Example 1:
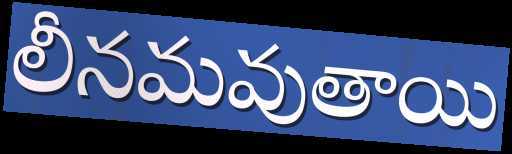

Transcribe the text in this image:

లీనమవుతాయి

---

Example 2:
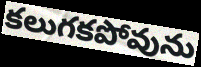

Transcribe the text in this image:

కలుగకపోవును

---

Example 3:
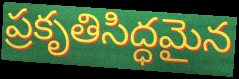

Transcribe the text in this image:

ప్రకృతిసిద్ధమైన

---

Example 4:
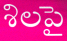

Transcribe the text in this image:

శిలపై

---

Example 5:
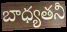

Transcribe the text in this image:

బాధ్యతనీ